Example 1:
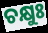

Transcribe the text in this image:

ଚକ୍ଷୁଃ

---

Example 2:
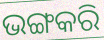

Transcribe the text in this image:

ଭଙ୍ଗକରି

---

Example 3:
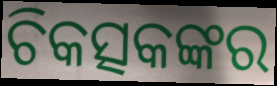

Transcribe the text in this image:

ଚିକତ୍ସକଙ୍କର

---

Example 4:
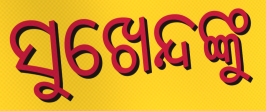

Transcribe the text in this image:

ସୁଖେନ୍ଦଙ୍କୁ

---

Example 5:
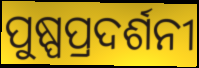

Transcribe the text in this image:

ପୁଷ୍ପପ୍ରଦର୍ଶନୀ